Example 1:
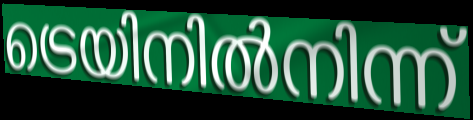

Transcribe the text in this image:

ട്രെയിനിൽനിന്ന്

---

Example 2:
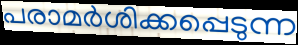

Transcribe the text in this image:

പരാമർശിക്കപ്പെടുന്ന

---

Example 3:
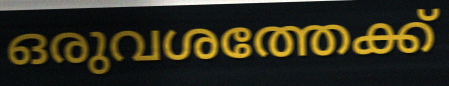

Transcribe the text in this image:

ഒരുവശത്തേക്ക്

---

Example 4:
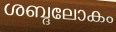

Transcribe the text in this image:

ശബ്ദലോകം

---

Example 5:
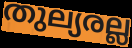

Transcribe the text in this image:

തുല്യരല്ല